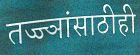
तज्ज्ञांसाठीही